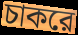
চাকরে